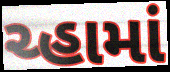
ચ્હામાં